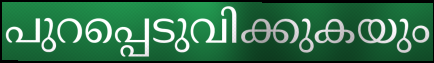
പുറപ്പെടുവിക്കുകയും